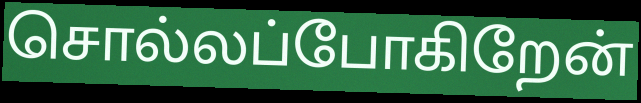
சொல்லப்போகிறேன்